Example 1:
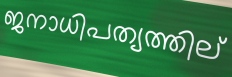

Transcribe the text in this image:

ജനാധിപത്യത്തില്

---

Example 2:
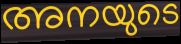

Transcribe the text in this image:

അനയുടെ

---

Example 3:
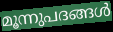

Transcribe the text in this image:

മൂന്നുപദങ്ങൾ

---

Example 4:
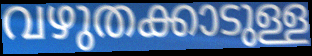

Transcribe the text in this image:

വഴുതക്കാടുള്ള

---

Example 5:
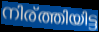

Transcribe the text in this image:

നിര്ത്തിയിട്ട